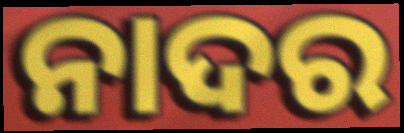
ନାଦର